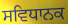
ਸਵਿਧਾਨਕ